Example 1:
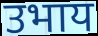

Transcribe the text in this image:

उभाय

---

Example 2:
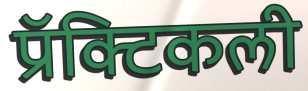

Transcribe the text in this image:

प्रॅक्टिकली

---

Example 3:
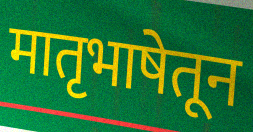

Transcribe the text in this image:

मातृभाषेतून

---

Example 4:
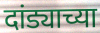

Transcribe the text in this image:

दांड्याच्या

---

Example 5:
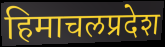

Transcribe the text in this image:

हिमाचलप्रदेश